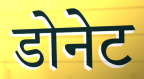
डोनेट